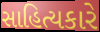
સાહિત્યકારે